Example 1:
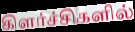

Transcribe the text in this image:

கிளர்ச்சிகளில்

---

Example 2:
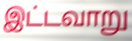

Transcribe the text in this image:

இட்டவாறு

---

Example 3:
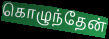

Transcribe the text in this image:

கொழுந்தேன்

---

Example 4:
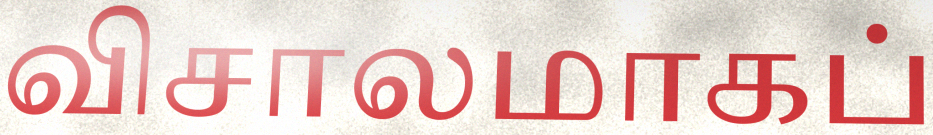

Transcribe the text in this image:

விசாலமாகப்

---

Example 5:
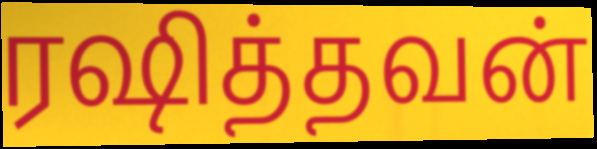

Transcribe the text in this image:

ரஷித்தவன்